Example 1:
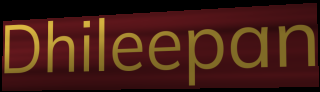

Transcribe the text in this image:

Dhileepan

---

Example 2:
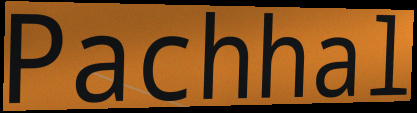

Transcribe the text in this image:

Pachhal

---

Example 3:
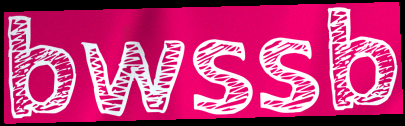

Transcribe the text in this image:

bwssb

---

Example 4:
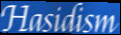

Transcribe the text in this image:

Hasidism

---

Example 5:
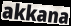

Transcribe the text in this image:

akkana